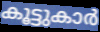
കൂട്ടുകാർ